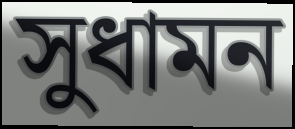
সুধামন